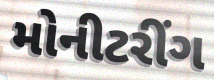
મોનીટરીંગ